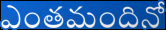
ఎంతమందినో